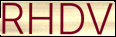
RHDV